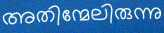
അതിന്മേലിരുന്നു